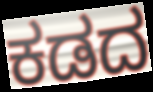
ಕಡದ